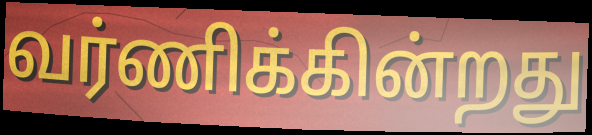
வர்ணிக்கின்றது